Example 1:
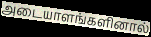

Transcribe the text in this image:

அடையாளங்களினால்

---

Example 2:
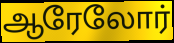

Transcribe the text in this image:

ஆரேலோர்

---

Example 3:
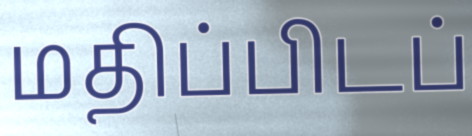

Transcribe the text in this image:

மதிப்பிடப்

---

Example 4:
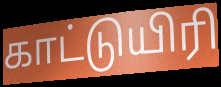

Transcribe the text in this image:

காட்டுயிரி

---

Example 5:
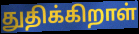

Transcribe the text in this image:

துதிக்கிறாள்